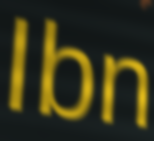
Ibn